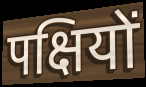
पक्षियों